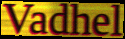
Vadhel